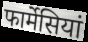
फार्मेसियां